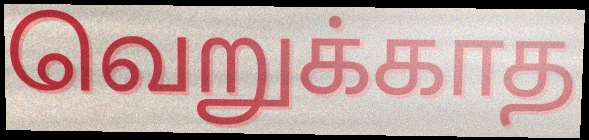
வெறுக்காத